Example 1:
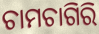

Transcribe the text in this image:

ଚାମଚାଗିରି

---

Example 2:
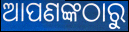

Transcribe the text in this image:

ଆପଣଙ୍କଠାରୁ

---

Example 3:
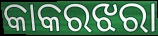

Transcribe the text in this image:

କାକରଝରା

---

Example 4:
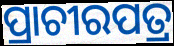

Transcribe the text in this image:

ପ୍ରାଚୀରପତ୍ର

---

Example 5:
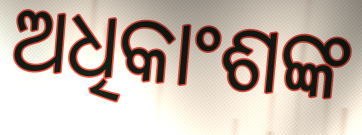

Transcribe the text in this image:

ଅଧିକାଂଶଙ୍କ